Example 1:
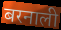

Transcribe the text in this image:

बरनाली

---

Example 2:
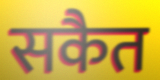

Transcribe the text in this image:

सकैत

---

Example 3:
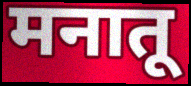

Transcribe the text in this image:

मनातू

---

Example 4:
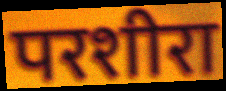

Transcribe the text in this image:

परशीरा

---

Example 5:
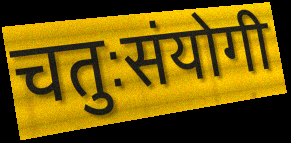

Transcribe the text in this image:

चतुःसंयोगी